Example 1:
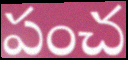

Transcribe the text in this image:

పంచ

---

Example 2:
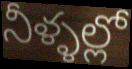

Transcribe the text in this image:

నీళ్ళల్లో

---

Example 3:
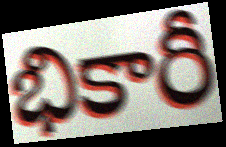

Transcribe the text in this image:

భికారీ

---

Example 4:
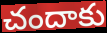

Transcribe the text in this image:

చందాకు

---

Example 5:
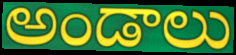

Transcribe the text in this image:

అండాలు